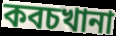
কবচখানা